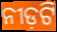
ନୀଡ଼ଟି